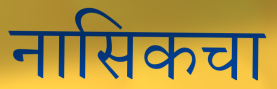
नासिकचा